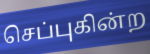
செப்புகின்ற